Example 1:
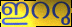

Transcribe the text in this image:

ഇററു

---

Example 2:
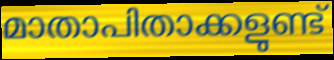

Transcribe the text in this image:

മാതാപിതാക്കളുണ്ട്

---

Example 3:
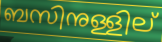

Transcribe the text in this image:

ബസിനുള്ളില്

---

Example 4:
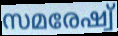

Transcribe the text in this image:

സമരേഷ്വ്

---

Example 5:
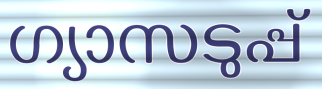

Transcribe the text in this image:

ഗ്യാസടുപ്പ്